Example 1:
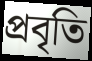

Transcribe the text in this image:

প্রবৃতি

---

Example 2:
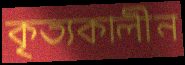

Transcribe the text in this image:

কৃত্যকালীন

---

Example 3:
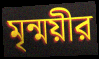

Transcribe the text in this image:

মৃন্ময়ীর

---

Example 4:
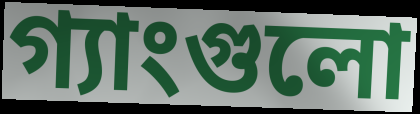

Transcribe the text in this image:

গ্যাংগুলো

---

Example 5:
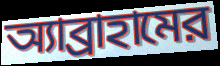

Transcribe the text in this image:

অ্যাব্রাহামের